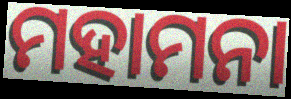
ମହାମନା